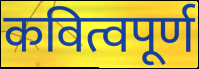
कवित्वपूर्ण